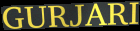
GURJARI